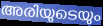
അരിയുടെയും